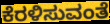
ಕೆರಳಿಸುವಂತೆ